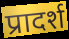
प्रादर्श